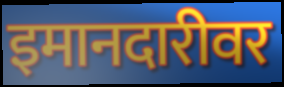
इमानदारीवर